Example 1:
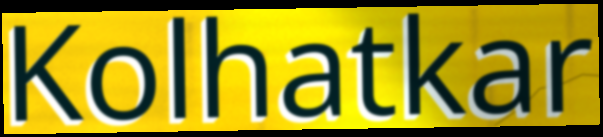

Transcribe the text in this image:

Kolhatkar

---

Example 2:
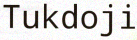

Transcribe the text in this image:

Tukdoji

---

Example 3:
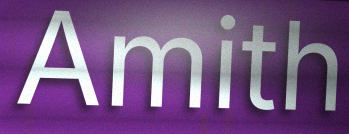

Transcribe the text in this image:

Amith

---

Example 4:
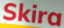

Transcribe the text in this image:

Skira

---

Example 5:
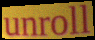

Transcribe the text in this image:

unroll